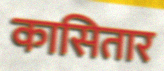
कासितार